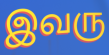
இவரு